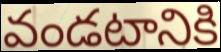
వండటానికి